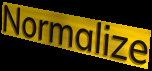
Normalize